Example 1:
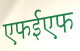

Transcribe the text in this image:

एफईएफ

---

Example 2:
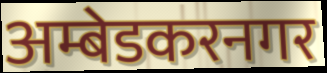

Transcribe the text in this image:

अम्बेडकरनगर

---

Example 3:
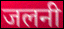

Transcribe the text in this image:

जलनी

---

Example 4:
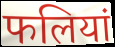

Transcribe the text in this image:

फलियां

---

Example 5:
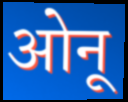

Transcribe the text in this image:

ओनू